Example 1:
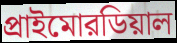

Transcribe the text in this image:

প্রাইমোরডিয়াল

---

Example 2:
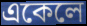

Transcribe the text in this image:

একেলে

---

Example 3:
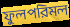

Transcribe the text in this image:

ফুলপরিমল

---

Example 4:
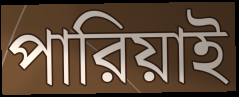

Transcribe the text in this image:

পারিয়াই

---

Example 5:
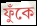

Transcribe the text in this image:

ফুঁকে